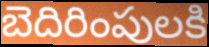
బెదిరింపులకి